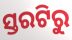
ସ୍ତରଟିରୁ